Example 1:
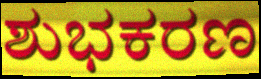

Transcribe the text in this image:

ಶುಭಕರಣ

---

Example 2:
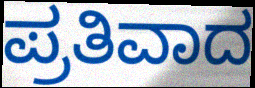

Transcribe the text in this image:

ಪ್ರತಿವಾದ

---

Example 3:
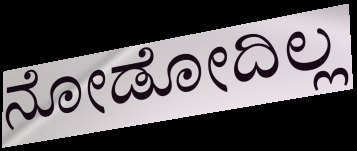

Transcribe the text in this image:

ನೋಡೋದಿಲ್ಲ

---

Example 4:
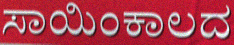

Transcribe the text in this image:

ಸಾಯಿಂಕಾಲದ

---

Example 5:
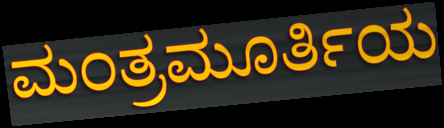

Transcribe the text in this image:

ಮಂತ್ರಮೂರ್ತಿಯ